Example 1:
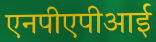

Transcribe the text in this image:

एनपीएपीआई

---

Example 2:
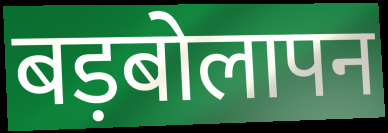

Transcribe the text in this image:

बड़बोलापन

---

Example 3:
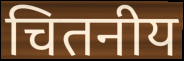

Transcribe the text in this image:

चितनीय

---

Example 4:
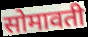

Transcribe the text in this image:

सोमावती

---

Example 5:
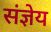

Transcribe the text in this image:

संज्ञेय